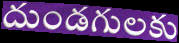
దుండగులకు